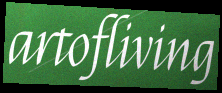
artofliving